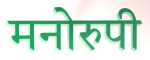
मनोरुपी